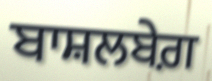
ਬਾਸ਼ਲਬੇਗ਼